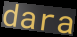
dara